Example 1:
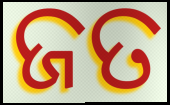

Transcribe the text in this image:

ଜତ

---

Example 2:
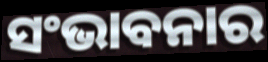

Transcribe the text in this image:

ସଂଭାବନାର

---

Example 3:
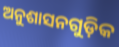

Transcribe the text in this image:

ଅନୁଶାସନଗୁଡ଼ିକ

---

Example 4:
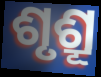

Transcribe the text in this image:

ଶୃଶ୍ରୂ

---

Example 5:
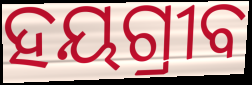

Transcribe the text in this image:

ହୟଗ୍ରୀବ